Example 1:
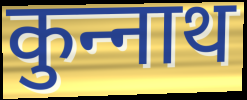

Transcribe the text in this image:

कुन्नाथ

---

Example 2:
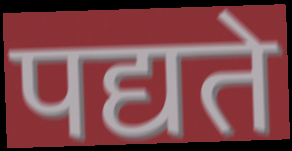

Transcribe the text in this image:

पद्यते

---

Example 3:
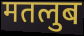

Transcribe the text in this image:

मतलुब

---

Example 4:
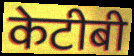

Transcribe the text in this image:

केटीबी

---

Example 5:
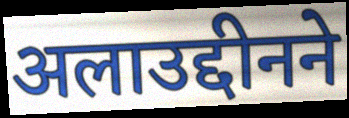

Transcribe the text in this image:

अलाउद्दीनने